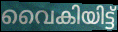
വൈകിയിട്ട്